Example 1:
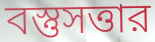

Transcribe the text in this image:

বস্তুসত্তার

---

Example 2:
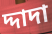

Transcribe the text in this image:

দ্দাদা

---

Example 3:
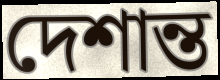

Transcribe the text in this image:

দেশান্ত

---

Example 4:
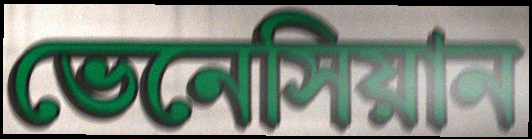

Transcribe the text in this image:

ভেনেসিয়ান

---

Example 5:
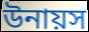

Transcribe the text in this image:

উনায়স